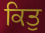
ਕਿਤੁ